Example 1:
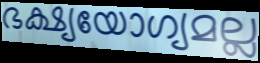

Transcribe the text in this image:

ഭക്ഷ്യയോഗ്യമല്ല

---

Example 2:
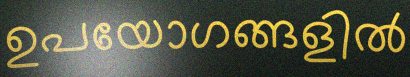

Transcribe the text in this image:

ഉപയോഗങ്ങളിൽ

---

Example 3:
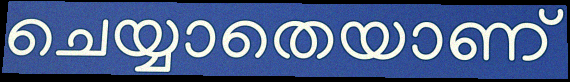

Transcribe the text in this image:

ചെയ്യാതെയാണ്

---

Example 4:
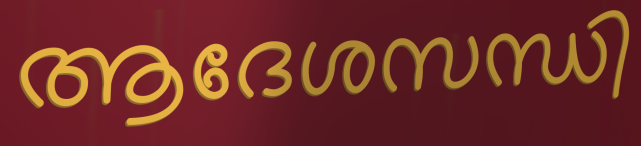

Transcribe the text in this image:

ആദേശസന്ധി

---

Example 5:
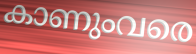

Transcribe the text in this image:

കാണുംവരെ